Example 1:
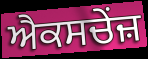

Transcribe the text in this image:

ਐਕਸਚੇਂਜ਼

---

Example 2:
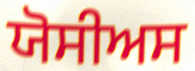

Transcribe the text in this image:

ਯੋਸੀਅਸ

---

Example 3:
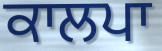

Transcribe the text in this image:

ਕਾਲਪਾ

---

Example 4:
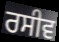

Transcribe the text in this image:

ਰਸੀਵ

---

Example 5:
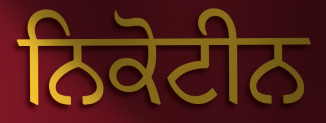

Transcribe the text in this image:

ਨਿਕੋਟੀਨ